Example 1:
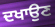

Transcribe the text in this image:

ਦਖਾਉਣ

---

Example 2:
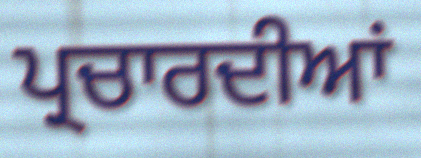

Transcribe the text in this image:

ਪ੍ਰਚਾਰਦੀਆਂ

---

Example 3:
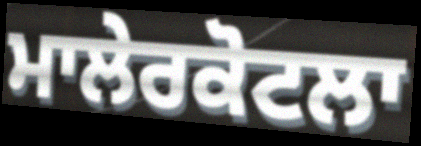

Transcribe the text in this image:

ਮਾਲੇਰਕੋਟਲਾ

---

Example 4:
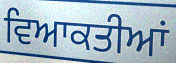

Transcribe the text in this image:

ਵਿਆਕਤੀਆਂ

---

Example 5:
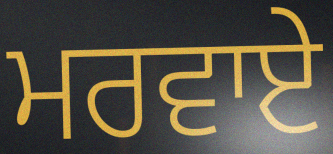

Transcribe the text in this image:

ਮਰਵਾਏ